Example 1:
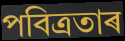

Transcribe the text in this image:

পবিত্ৰতাৰ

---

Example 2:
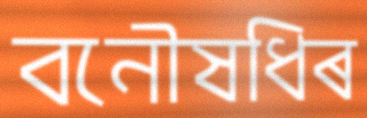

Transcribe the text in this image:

বনৌষধিৰ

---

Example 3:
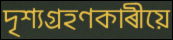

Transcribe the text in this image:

দৃশ্যগ্ৰহণকাৰীয়ে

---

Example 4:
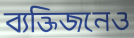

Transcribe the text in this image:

ব্যক্তিজনেও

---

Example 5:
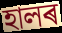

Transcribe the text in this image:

হালৰ